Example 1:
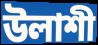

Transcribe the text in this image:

উলাশী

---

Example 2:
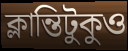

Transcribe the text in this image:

ক্লান্তিটুকুও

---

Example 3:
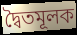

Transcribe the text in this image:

দ্বৈতমূলক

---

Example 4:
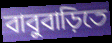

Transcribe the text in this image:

বাবুবাড়িতে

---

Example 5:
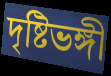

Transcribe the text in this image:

দৃষ্টিভঙ্গী